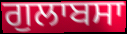
ਗੁਲਾਬਸਾ